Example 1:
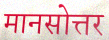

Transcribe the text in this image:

मानसोत्तर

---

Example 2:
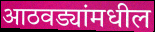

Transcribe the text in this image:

आठवड्यांमधील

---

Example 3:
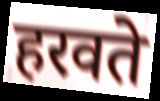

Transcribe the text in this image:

हरवते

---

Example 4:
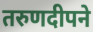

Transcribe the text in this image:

तरुणदीपने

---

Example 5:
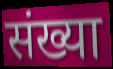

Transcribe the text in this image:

संख्या